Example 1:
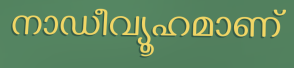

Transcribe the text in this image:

നാഡീവ്യൂഹമാണ്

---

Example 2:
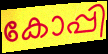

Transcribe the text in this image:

കോപ്പി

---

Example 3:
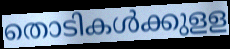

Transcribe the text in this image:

തൊടികൾക്കുളള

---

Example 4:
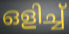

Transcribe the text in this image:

ഒളിച്ച്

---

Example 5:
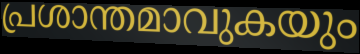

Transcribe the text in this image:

പ്രശാന്തമാവുകയും